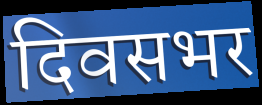
दिवसभर